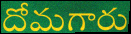
దోమగారు